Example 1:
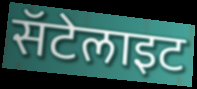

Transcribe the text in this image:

सॅटेलाइट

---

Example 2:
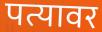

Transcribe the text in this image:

पत्यावर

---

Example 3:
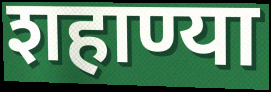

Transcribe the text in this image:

शहाण्या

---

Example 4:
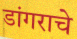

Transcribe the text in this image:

डांगराचे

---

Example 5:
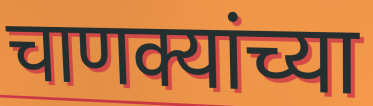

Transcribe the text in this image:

चाणक्यांच्या